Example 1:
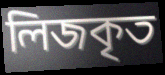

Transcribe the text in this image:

লিজকৃত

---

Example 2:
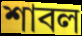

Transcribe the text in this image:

শাবল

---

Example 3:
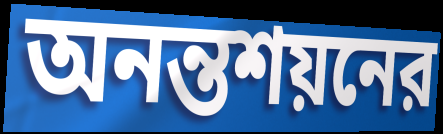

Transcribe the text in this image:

অনন্তশয়নের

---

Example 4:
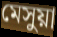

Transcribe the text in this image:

মেসুয়া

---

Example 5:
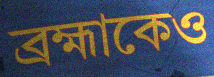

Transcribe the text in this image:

ব্রহ্মাকেও